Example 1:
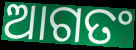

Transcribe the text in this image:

ଆଗତଂ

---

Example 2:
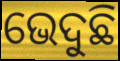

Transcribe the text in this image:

ଭେଦୁଛି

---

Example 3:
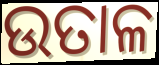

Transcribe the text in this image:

ଉତାଳ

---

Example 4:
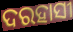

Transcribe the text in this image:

ଦରହାସୀ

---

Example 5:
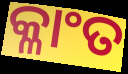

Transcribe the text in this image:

କ୍ଳାଂତ